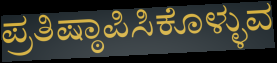
ಪ್ರತಿಷ್ಠಾಪಿಸಿಕೊಳ್ಳುವ